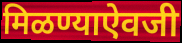
मिळण्याऐवजी